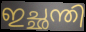
ഇച്ഛന്തി